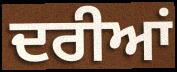
ਦਰੀਆਂ